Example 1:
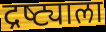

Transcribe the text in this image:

द्रष्ट्याला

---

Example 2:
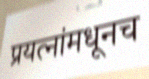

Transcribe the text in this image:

प्रयत्नांमधूनच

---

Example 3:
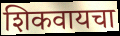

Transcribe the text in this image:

शिकवायचा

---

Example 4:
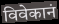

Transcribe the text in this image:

विवेकानं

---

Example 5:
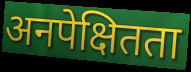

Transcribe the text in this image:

अनपेक्षितता